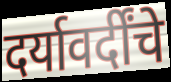
दर्यावर्दींचे